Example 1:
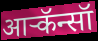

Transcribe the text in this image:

आर्‍कॅन्सॉ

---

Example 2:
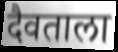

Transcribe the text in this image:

दैवताला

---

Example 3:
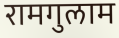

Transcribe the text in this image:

रामगुलाम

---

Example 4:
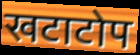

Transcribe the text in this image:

खटाटोप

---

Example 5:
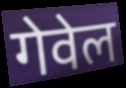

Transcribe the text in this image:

गेवेल